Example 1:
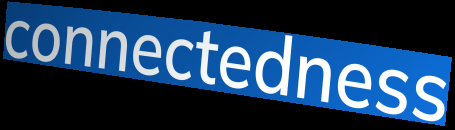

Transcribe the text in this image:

connectedness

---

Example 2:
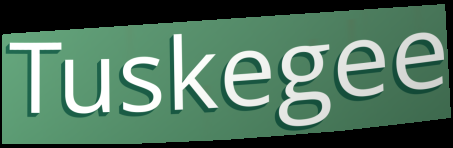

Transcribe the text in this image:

Tuskegee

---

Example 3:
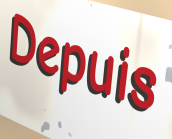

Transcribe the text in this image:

Depuis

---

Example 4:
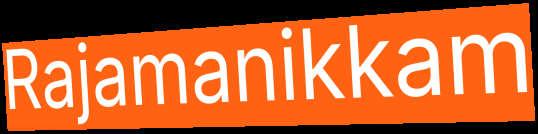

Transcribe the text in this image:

Rajamanikkam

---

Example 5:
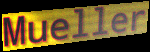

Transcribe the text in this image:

Mueller